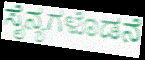
ಸೈನ್ಯಗಳೊಡನೆ